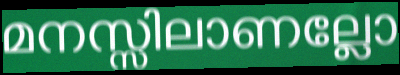
മനസ്സിലാണല്ലോ